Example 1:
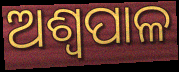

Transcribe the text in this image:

ଅଶ୍ୱପାଳ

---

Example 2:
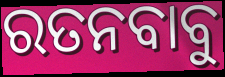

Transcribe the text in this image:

ରତନବାବୁ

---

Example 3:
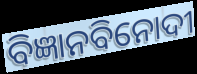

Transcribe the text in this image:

ବିଜ୍ଞାନବିନୋଦୀ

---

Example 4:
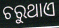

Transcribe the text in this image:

ଚରୁଥାଏ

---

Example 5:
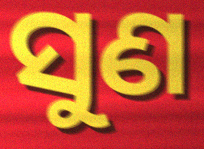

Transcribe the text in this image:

ସୁଣ